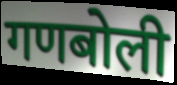
गणबोली